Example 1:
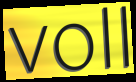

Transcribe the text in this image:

voll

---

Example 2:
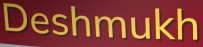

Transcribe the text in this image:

Deshmukh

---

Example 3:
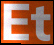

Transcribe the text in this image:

Et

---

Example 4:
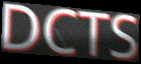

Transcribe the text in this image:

DCTS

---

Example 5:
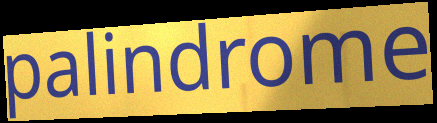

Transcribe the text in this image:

palindrome